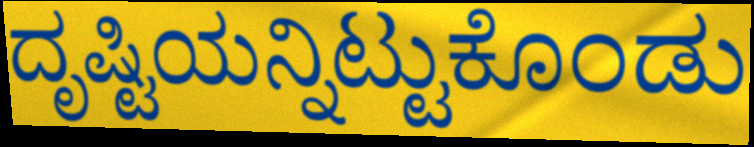
ದೃಷ್ಟಿಯನ್ನಿಟ್ಟುಕೊಂಡು